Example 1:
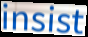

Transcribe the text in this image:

insist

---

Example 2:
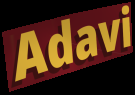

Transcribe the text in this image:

Adavi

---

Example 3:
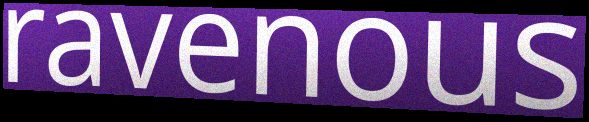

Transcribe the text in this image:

ravenous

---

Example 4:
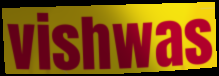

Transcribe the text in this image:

vishwas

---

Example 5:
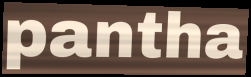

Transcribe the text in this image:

pantha